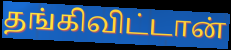
தங்கிவிட்டான்